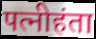
पत्नीहंता